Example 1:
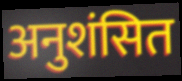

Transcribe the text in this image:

अनुशंसित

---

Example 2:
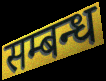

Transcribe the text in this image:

सम्बन्ध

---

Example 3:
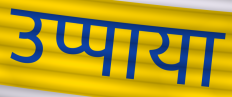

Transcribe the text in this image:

उप्पाया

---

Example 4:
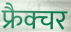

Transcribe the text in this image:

फ्रैक्चर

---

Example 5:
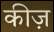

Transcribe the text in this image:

कीज़